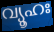
വ്യൂഹഃ